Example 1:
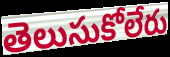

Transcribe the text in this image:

తెలుసుకోలేరు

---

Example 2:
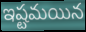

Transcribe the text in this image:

ఇష్టమయిన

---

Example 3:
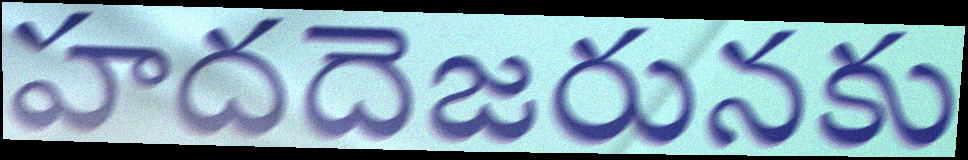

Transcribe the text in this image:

హదదెజరునకు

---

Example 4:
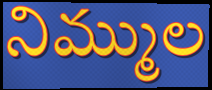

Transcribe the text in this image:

నిమ్ముల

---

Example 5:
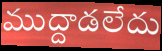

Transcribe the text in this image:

ముద్దాడలేదు